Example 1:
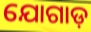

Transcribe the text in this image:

ଯୋଗାଡ଼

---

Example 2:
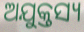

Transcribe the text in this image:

ଅଯୁକ୍ତସ୍ୟ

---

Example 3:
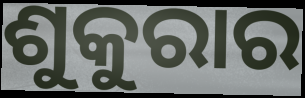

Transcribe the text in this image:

ଶୁକୁରାର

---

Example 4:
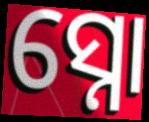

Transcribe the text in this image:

ସ୍ନୋ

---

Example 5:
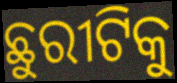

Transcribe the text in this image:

ଛୁରୀଟିକୁ